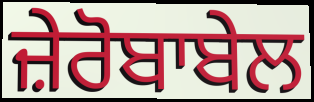
ਜ਼ੇਰੋਬਾਬੇਲ